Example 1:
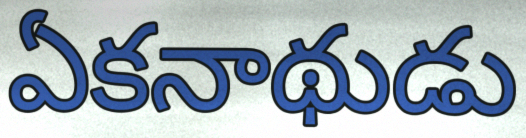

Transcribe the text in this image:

ఏకనాథుడు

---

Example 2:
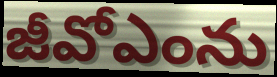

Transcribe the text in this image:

జీవోఎంను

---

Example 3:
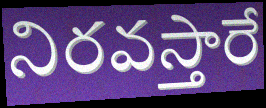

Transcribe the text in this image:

నిరవస్తారే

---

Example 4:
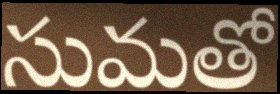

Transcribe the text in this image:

సుమతో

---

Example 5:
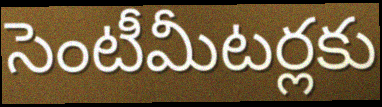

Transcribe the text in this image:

సెంటీమీటర్లకు